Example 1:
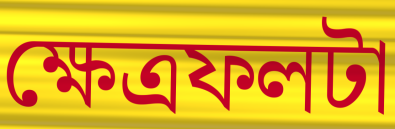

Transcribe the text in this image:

ক্ষেত্রফলটা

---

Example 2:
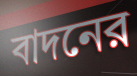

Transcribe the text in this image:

বাদনের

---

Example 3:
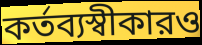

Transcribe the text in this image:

কর্তব্যস্বীকারও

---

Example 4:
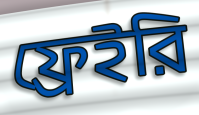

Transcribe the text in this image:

ফ্রেইরি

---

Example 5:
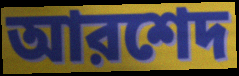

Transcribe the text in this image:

আরশেদ